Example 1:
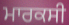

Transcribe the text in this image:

ਮਾਰਕਸੀ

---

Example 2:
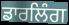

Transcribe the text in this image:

ਡਾਰਲਿੰਗ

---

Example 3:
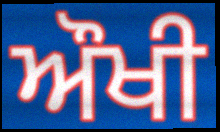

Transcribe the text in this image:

ਔਖੀ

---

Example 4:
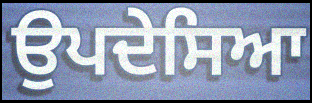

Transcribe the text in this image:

ਉਪਦੇਸਿਆ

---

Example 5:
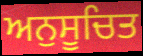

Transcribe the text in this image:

ਅਨੁਸੂਚਿਤ